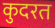
कुदरत